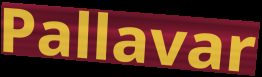
Pallavar